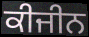
ਕੀਜੀਨ